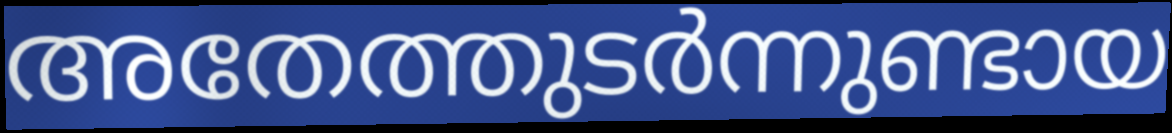
അതേത്തുടർന്നുണ്ടായ